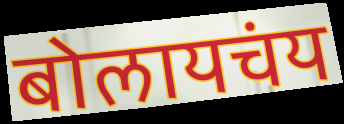
बोलायचंय